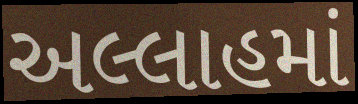
અલ્લાહમાં